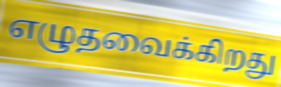
எழுதவைக்கிறது